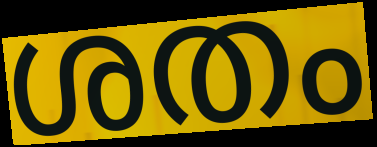
ശതം